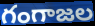
గంగాజల